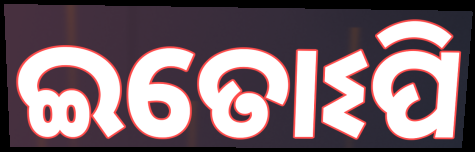
ଇତୋଽପି